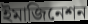
ইমাজিনেশন